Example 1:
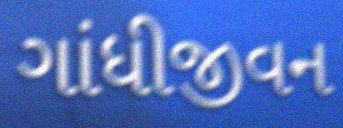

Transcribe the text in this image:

ગાંધીજીવન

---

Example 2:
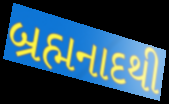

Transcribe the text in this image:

બ્રહ્મનાદથી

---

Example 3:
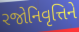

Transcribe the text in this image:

રજોનિવૃત્તિને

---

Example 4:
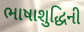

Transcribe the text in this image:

ભાષાશુદ્ધિની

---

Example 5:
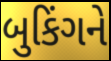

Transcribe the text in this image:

બુકિંગને